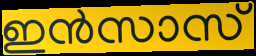
ഇൻസാസ്